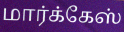
மார்க்கேஸ்